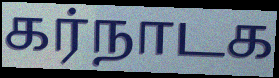
கர்நாடக